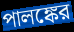
পালঙ্কের